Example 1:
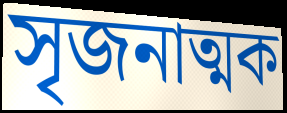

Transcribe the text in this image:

সৃজনাত্মক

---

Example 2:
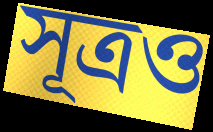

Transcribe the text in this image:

সূত্ৰও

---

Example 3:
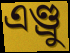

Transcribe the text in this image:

এণ্ড্ৰু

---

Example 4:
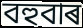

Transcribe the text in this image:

বহুবাৰ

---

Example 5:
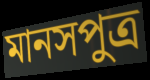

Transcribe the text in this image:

মানসপুত্ৰ